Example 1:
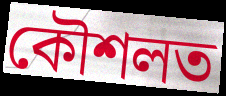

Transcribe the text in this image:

কৌশলত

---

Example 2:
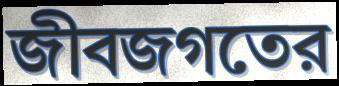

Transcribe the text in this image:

জীবজগতের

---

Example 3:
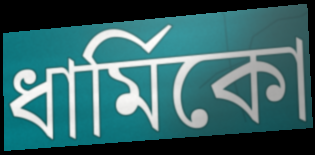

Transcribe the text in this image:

ধার্মিকো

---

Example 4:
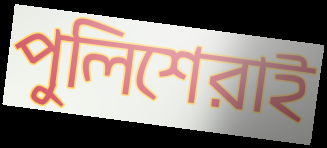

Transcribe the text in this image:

পুলিশেরাই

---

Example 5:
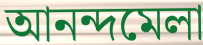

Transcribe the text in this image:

আনন্দমেলা